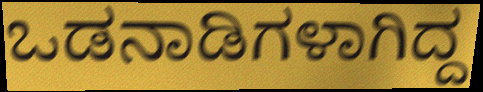
ಒಡನಾಡಿಗಳಾಗಿದ್ದ